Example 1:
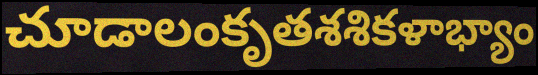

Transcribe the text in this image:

చూడాలంకృతశశికళాభ్యాం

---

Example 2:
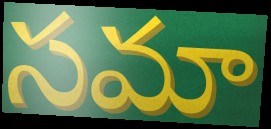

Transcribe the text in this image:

సమా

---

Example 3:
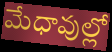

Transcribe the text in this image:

మేధావుల్లో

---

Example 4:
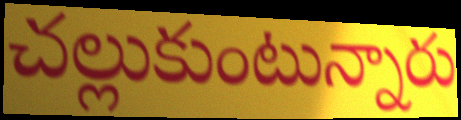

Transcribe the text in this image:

చల్లుకుంటున్నారు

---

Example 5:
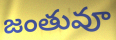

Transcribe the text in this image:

జంతువూ